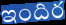
ఇందిర